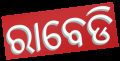
ରାବେଡି